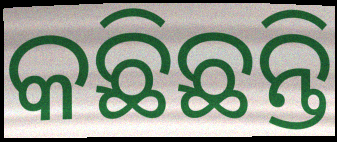
କଛିଛନ୍ତି